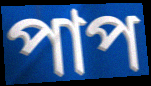
পাপ